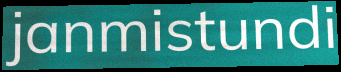
janmistundi